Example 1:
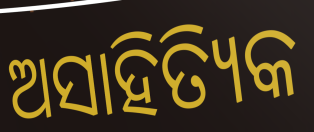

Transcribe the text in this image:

ଅସାହିତ୍ୟିକ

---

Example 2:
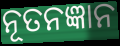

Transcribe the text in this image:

ନୂତନଜ୍ଞାନ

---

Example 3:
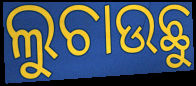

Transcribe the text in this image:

ଲୁଚାଉଛୁ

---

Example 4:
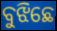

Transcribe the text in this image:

ବୁଝିଛେ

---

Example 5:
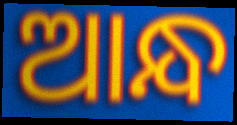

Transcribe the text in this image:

ଆନ୍ଧ